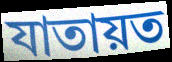
যাতায়ত